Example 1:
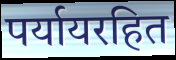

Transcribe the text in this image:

पर्यायरहित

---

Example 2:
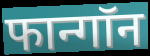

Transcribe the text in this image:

फान्गॉन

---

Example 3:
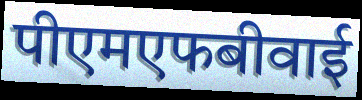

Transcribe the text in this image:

पीएमएफबीवाई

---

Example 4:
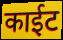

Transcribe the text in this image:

काईट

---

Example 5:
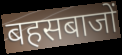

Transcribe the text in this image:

बहसबाजों